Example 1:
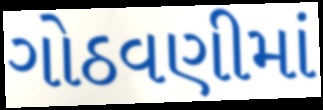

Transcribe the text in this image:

ગોઠવણીમાં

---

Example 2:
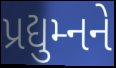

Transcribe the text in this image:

પ્રદ્યુમ્નને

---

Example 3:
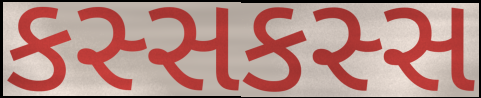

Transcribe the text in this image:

કસ્સકસ્સ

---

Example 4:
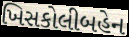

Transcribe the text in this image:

ખિસકોલીબહેન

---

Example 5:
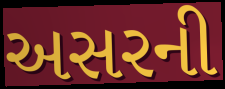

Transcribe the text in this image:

અસરની